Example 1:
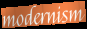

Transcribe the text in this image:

modernism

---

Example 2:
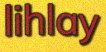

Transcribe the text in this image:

lihlay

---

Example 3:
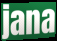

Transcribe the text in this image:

jana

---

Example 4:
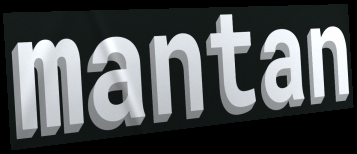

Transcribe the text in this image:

mantan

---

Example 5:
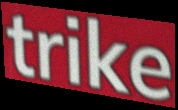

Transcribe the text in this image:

trike